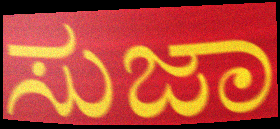
ಸುಜಾ